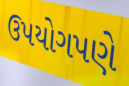
ઉપયોગપણે